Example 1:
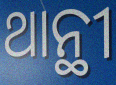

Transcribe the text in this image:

ଥାନ୍ଥୀ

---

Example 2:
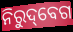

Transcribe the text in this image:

ନିରୁଦ୍‌ବେଗ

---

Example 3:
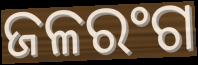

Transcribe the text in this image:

ଜଳରଂଗ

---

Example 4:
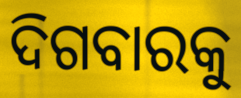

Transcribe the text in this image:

ଦିଗବାରକୁ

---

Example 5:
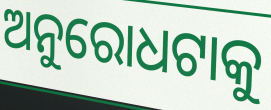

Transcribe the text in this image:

ଅନୁରୋଧଟାକୁ